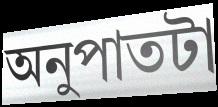
অনুপাতটা